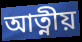
আত্নীয়